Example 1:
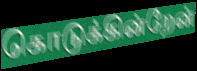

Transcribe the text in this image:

கொடுக்கின்றேன்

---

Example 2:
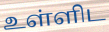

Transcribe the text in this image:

உள்ளிட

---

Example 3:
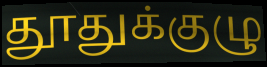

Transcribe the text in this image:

தூதுக்குழு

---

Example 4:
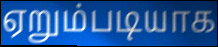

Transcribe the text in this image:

ஏறும்படியாக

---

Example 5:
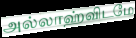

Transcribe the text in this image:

அல்லாஹ்விடமே